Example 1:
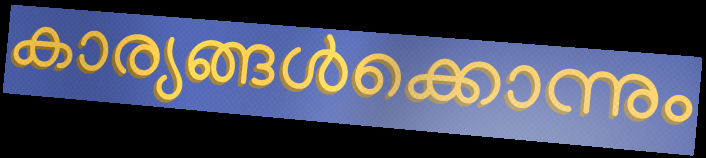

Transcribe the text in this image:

കാര്യങ്ങൾക്കൊന്നും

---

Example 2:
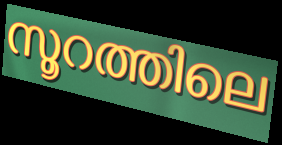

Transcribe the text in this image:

സൂറത്തിലെ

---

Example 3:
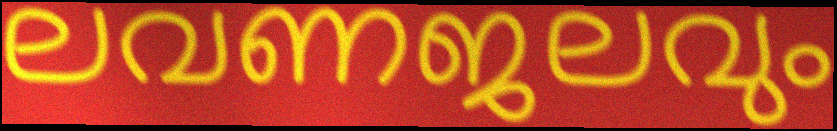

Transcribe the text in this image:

ലവണജലവും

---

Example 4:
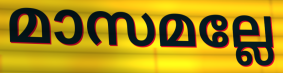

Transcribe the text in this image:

മാസമല്ലേ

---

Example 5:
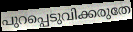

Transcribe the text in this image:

പുറപ്പെടുവിക്കരുതേ